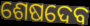
ଶେଷଦେବ